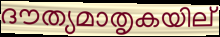
ദൗത്യമാതൃകയില്